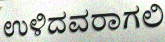
ಉಳಿದವರಾಗಲಿ